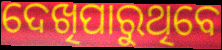
ଦେଖିପାରୁଥିବେ